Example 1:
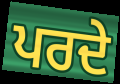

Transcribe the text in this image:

ਪਰਦੇ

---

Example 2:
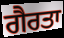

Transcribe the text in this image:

ਗੈਰਤਾ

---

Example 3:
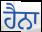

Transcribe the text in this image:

ਹੈਨਾ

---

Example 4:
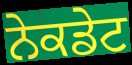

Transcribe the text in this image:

ਨੇਕਡੇਟ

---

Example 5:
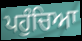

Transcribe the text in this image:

ਪਹੁੰਚਿਆ